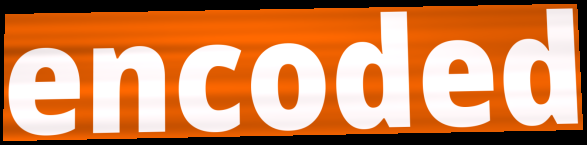
encoded